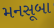
મનસૂબા